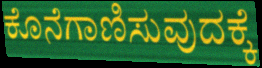
ಕೊನೆಗಾಣಿಸುವುದಕ್ಕೆ